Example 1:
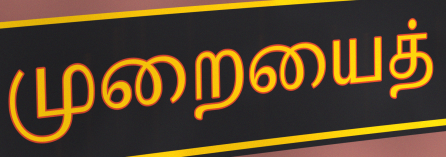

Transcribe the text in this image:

முறையைத்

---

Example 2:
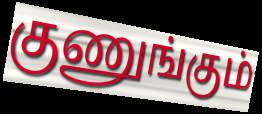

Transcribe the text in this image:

குணுங்கும்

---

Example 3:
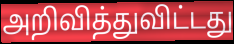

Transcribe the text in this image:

அறிவித்துவிட்டது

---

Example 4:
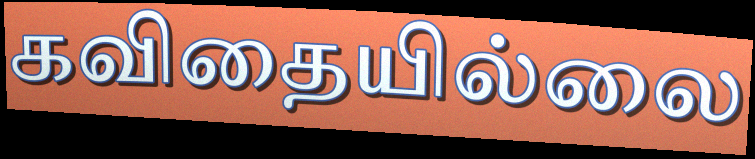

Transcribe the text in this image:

கவிதையில்லை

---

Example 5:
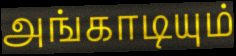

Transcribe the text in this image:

அங்காடியும்